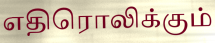
எதிரொலிக்கும்